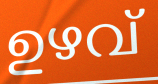
ഉഴവ്